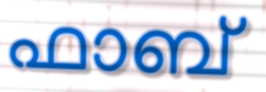
ഫാബ്